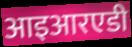
आइआरएडी